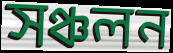
সঞ্চলন